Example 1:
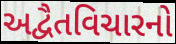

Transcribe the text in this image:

અદ્વૈતવિચારનો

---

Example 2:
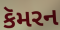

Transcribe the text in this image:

કૅમરન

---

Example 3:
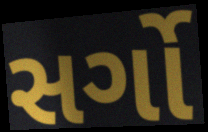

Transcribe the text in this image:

સર્ગો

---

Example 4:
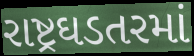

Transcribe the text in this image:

રાષ્ટ્રઘડતરમાં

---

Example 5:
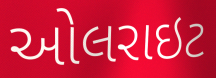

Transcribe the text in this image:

ઓલરાઇટ